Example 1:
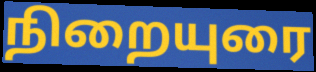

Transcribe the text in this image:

நிறையுரை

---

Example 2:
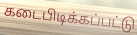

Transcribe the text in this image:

கடைபிடிக்கப்பட்டு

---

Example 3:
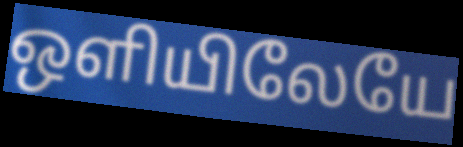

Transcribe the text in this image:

ஒளியிலேயே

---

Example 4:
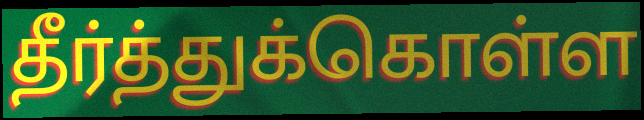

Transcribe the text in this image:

தீர்த்துக்கொள்ள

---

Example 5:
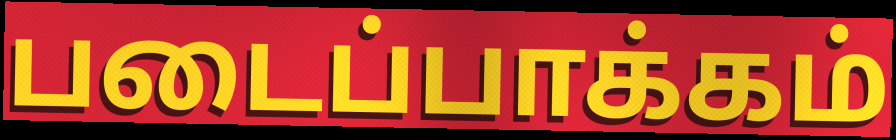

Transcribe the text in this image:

படைப்பாக்கம்